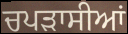
ਚਪੜਾਸੀਆਂ